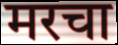
मरचा